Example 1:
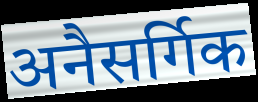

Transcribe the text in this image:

अनैसर्गिक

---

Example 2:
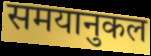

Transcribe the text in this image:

समयानुकल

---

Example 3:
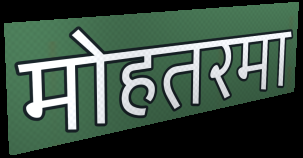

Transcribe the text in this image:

मोहतरमा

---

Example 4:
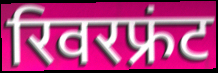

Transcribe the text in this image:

रिवरफ्रंट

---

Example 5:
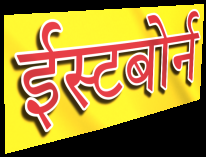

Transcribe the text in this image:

ईस्टबोर्न